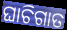
ଘାଚିଗାତ